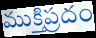
ముక్తిప్రదం